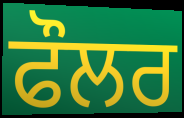
ਫੌਲਰ